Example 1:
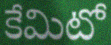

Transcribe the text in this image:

కేమిటో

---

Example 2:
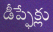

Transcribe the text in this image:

డీప్ఫేక్లు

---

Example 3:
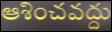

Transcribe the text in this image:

ఆశించవద్దు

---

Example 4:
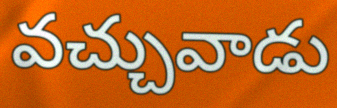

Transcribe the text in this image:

వచ్చువాడు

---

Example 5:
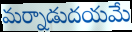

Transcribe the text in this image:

మర్నాడుదయమే